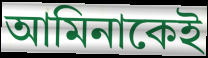
আমিনাকেই